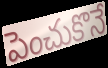
పెంచుకొనే